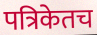
पत्रिकेतच